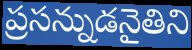
ప్రసన్నుడనైతిని